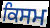
ਕਿਸਮ